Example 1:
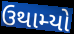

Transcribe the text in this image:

ઉથામ્યો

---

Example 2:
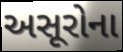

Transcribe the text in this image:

અસૂરોના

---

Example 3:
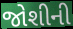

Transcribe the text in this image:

જોશીની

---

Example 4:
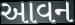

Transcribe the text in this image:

આવન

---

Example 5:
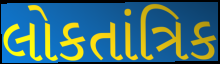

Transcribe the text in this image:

લોકતાંત્રિક